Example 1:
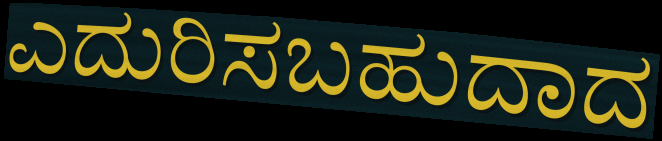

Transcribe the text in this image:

ಎದುರಿಸಬಹುದಾದ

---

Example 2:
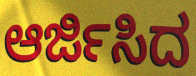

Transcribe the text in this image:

ಆರ್ಜಿಸಿದ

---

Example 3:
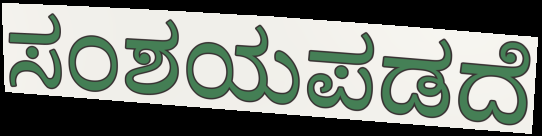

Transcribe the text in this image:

ಸಂಶಯಪಡದೆ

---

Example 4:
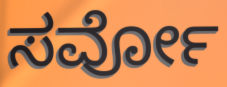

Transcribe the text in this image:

ಸರ್ವೋ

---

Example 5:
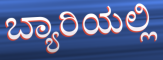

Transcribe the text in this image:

ಬ್ಯಾರಿಯಲ್ಲಿ